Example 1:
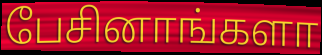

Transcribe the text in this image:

பேசினாங்களா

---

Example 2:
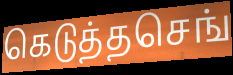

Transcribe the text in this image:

கெடுத்தசெங்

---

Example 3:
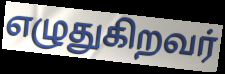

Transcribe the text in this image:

எழுதுகிறவர்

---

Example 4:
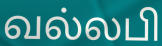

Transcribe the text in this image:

வல்லபி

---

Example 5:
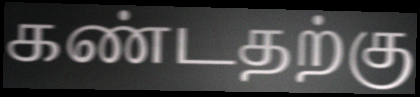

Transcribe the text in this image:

கண்டதற்கு